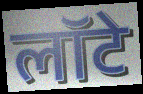
लॉटे